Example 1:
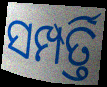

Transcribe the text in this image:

ସମ୍ପର୍ତ୍ତି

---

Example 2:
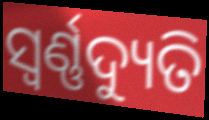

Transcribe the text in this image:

ସ୍ୱର୍ଣ୍ଣଦ୍ୟୁତି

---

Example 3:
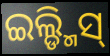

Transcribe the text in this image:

ଇଲ୍ଡ୍ମିସ୍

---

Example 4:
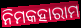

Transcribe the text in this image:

ନିମକହାରାମ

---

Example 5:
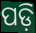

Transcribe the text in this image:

ପଡ଼ି